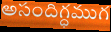
అసందిగ్ధముగ